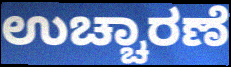
ಉಚ್ಚಾರಣೆ